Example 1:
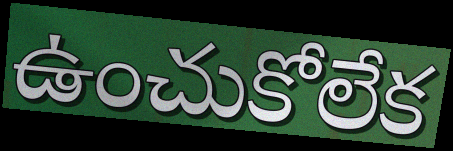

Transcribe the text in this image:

ఉంచుకోలేక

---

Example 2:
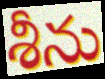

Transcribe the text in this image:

శీను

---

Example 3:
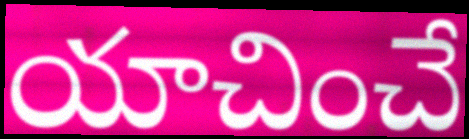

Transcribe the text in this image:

యాచించే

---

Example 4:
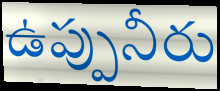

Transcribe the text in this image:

ఉప్పునీరు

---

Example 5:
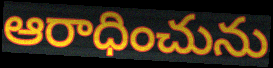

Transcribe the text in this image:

ఆరాధించును